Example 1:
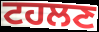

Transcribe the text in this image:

ਟਹਲਣ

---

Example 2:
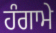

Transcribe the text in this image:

ਹੰਗਾਮੇ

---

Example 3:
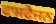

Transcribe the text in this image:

ਫਾਸਫੈਜਨ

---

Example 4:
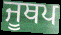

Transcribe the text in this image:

ਜੂਥਪ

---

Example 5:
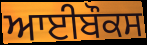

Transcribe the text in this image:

ਆਈਬੌਕਸ